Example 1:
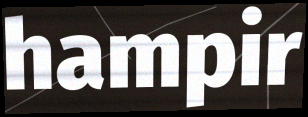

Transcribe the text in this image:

hampir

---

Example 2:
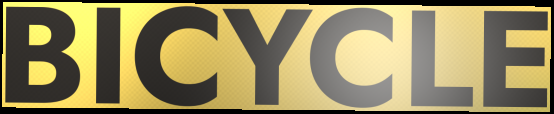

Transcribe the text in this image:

BICYCLE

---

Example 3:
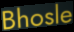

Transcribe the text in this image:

Bhosle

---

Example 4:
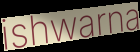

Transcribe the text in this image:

ishwarna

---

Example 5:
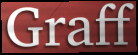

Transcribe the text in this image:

Graff